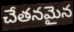
చేతనమైన